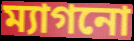
ম্যাগনো